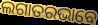
ଲଗାତରଭାବେ